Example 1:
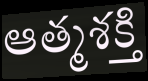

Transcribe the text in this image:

ఆత్మశక్తి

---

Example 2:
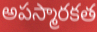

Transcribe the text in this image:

అపస్మారకత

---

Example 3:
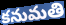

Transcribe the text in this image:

కనుమతి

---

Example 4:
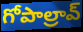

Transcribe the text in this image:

గోపాల్రావ్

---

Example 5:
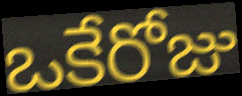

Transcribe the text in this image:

ఒకేరోజు